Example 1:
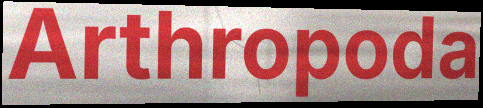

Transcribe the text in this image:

Arthropoda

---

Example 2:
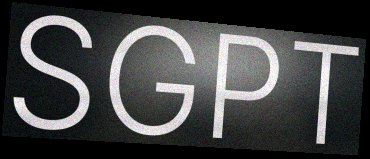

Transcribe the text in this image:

SGPT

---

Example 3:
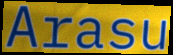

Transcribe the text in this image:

Arasu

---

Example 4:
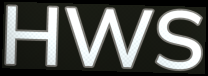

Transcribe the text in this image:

HWS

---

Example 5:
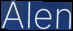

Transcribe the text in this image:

Alen